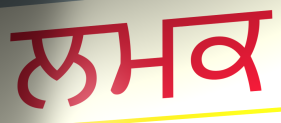
ਲਮਕ